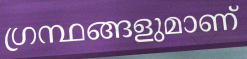
ഗ്രന്ഥങ്ങളുമാണ്